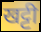
खट्टी